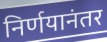
निर्णयानंतर